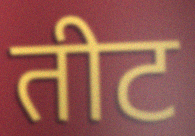
तीट